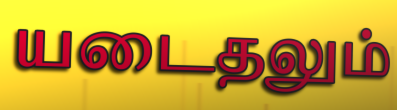
யடைதலும்